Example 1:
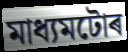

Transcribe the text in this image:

মাধ্যমটোৰ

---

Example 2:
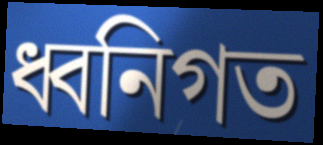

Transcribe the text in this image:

ধ্বনিগত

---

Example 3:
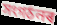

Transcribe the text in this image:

সংগঠনৰ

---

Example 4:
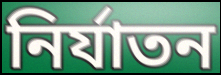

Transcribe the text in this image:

নিৰ্যাতন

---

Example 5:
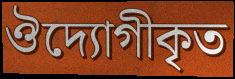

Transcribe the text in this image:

ঔদ্যোগীকৃত